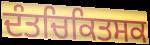
ਦੰਤਚਿਕਿਤਸਕ